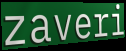
zaveri